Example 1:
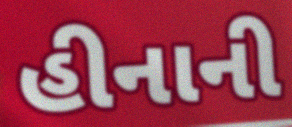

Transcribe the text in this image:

હીનાની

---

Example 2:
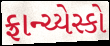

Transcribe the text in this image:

ફ્રાન્ચ્યેસ્કો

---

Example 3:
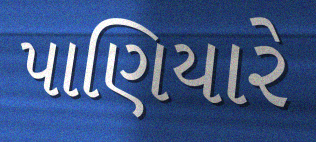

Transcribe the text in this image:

પાણિયારે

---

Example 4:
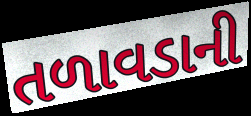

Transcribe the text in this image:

તળાવડાની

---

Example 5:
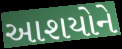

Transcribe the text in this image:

આશયોને